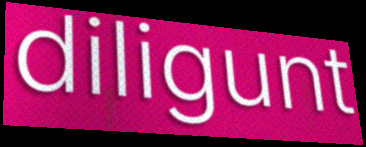
diligunt